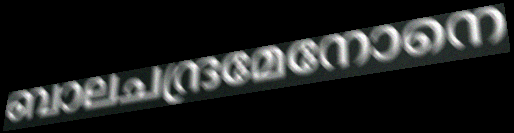
ബാലചന്ദ്രമേനോനെ